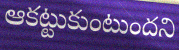
ఆకట్టుకుంటుందని